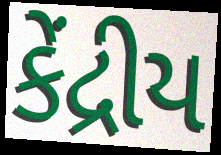
કેંદ્રીય